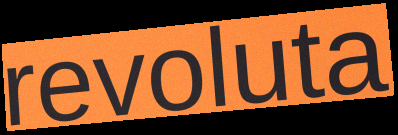
revoluta